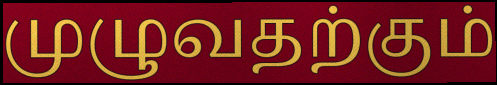
முழுவதற்கும்